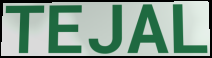
TEJAL